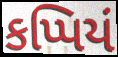
કપ્પિયં